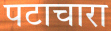
पटाचारा